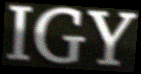
IGY